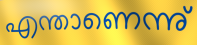
എന്താണെന്നു്